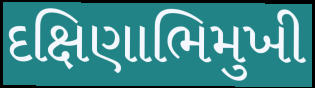
દક્ષિણાભિમુખી